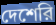
দেশেরি